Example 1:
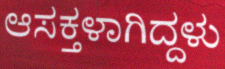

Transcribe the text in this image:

ಆಸಕ್ತಳಾಗಿದ್ದಳು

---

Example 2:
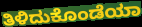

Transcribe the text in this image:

ತಿಳಿದುಕೊಂಡೆಯಾ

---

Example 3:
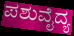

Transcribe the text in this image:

ಪಶುವೈದ್ಯ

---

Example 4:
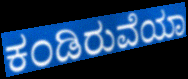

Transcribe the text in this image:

ಕಂಡಿರುವೆಯಾ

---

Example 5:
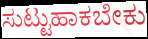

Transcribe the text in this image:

ಸುಟ್ಟುಹಾಕಬೇಕು